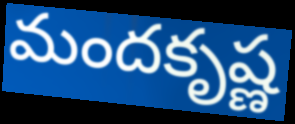
మందకృష్ణ